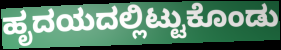
ಹೃದಯದಲ್ಲಿಟ್ಟುಕೊಂಡು